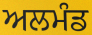
ਅਲਮੰਡ